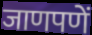
जाणपणें